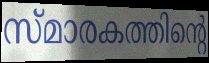
സ്മാരകത്തിന്റെ